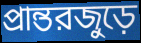
প্রান্তরজুড়ে